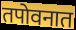
तपोवनात